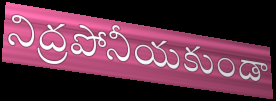
నిద్రపోనీయకుండా